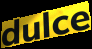
dulce